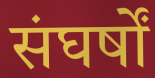
संघर्षों